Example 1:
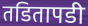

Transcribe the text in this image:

तडितापडी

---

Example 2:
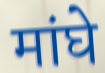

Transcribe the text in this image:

मांघे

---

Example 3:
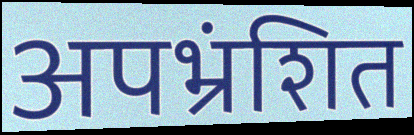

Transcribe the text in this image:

अपभ्रंशित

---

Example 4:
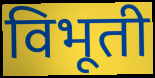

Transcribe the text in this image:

विभूती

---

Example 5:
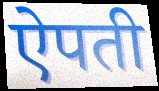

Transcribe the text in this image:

ऐपती